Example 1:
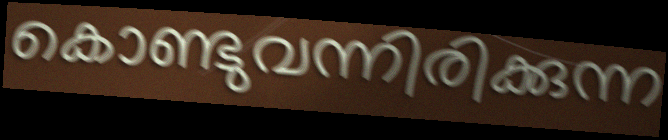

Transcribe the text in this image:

കൊണ്ടുവന്നിരിക്കുന്ന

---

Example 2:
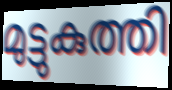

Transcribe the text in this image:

മുട്ടുകുത്തി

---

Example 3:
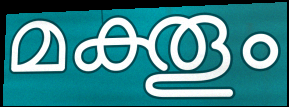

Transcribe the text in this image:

മക്തൂം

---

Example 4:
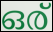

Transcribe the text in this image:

ഒര്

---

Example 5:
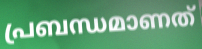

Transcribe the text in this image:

പ്രബന്ധമാണത്